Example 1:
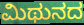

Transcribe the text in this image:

ಮಿಥುನದ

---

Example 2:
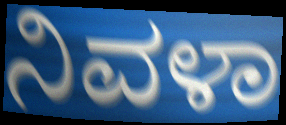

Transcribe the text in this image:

ನಿವಳಾ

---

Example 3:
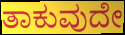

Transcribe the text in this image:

ತಾಕುವುದೇ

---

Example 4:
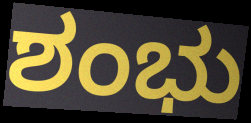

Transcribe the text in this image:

ಶಂಭು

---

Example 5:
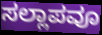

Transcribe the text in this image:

ಸಲ್ಲಾಪವೂ